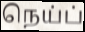
நெய்ப்